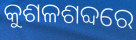
କୁଶଳଶବ୍ଦରେ